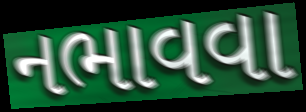
નભાવવા